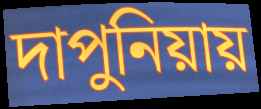
দাপুনিয়ায়